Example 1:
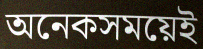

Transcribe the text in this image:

অনেকসময়েই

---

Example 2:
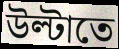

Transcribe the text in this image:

উল্টাতে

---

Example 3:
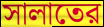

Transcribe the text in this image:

সালাতের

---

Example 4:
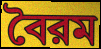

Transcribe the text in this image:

বৈরম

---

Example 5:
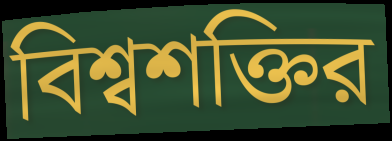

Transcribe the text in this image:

বিশ্বশক্তির